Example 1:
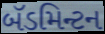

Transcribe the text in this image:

બૅડમિન્ટન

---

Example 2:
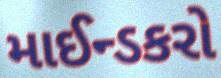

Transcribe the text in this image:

માઈન્ડકરો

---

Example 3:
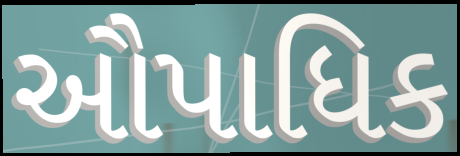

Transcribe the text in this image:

ઔપાધિક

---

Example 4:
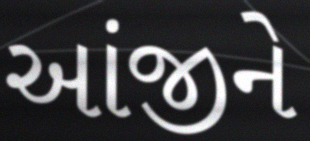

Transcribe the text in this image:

આંજીને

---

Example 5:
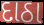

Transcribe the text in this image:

દાઠા